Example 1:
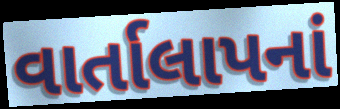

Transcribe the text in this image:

વાર્તાલાપનાં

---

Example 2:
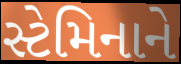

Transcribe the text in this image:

સ્ટેમિનાને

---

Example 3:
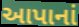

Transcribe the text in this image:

આપાનાં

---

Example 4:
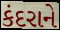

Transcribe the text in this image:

કંદરાને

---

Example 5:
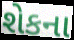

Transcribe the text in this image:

શેકના